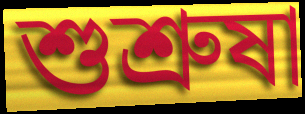
শুশ্ৰুষা